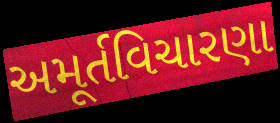
અમૂર્તવિચારણા